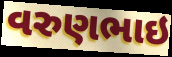
વરુણભાઇ